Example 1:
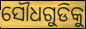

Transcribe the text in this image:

ସୌଧଗୁଡିକୁ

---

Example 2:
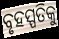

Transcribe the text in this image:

ବୃହସ୍ପତିକୁ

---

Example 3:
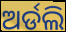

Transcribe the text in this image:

ଅର୍ଡଲି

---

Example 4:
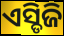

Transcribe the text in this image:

ଏସ୍ଡିଜି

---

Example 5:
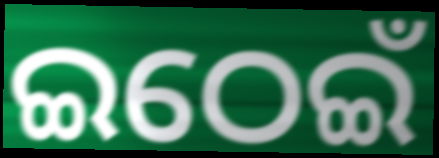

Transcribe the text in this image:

ଇଠେଇଁ